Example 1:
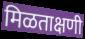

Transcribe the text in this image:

मिळताक्षणी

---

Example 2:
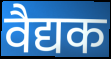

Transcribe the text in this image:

वैद्यक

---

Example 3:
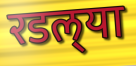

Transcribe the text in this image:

रडल्या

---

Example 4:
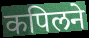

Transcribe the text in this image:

कपिलने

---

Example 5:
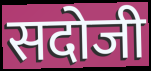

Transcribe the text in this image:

सदोजी